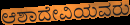
ಆಶಾದೇವಿಯವರು